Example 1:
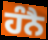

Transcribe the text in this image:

ਹੰਨੈ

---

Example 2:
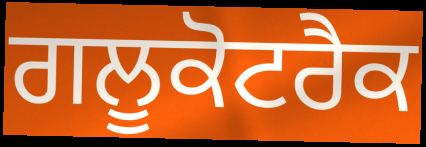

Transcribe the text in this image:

ਗਲੂਕੋਟਰੈਕ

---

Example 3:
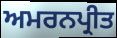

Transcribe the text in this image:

ਅਮਰਨਪ੍ਰੀਤ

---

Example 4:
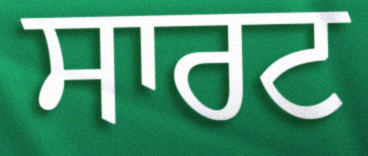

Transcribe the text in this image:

ਸਾਰਟ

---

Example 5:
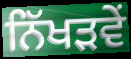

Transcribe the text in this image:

ਨਿੱਖੜਵੇਂ